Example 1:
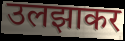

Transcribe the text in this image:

उलझाकर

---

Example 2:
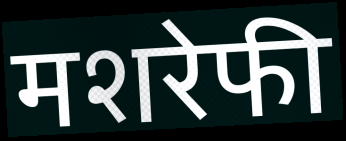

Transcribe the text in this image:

मशरेफी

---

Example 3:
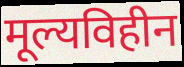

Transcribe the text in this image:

मूल्यविहीन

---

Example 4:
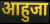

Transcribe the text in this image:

आहुजा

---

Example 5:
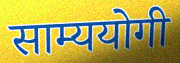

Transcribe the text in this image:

साम्ययोगी